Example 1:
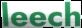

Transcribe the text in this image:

leech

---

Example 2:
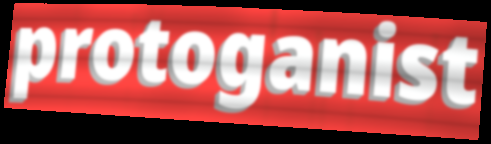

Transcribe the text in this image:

protoganist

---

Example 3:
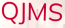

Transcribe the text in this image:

QJMS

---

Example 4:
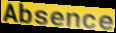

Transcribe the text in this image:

Absence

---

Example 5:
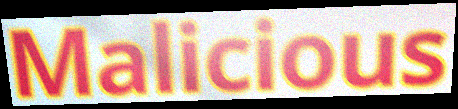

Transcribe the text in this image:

Malicious